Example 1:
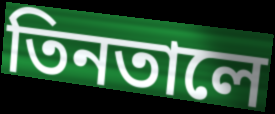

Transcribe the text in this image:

তিনতালে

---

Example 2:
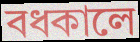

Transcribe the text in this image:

বধকালে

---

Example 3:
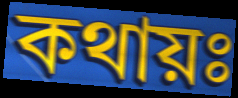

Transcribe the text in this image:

কথায়ঃ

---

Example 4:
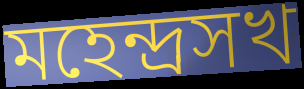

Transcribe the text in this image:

মহেন্দ্রসখ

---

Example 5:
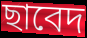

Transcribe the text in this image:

ছাবেদ